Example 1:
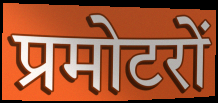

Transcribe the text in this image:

प्रमोटरों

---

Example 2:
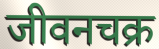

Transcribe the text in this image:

जीवनचक्र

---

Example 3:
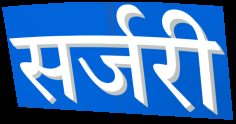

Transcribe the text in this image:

सर्जरी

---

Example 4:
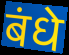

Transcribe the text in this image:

बंधे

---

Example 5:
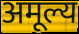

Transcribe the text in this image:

अमूल्‍य